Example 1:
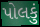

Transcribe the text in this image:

પોલકું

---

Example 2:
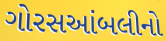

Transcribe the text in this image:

ગોરસઆંબલીનો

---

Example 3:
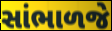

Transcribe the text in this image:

સાંભાળજે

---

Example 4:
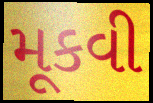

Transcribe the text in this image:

મૂકવી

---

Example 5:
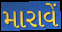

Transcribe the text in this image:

મારાવેં